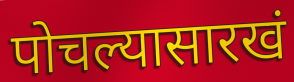
पोचल्यासारखं